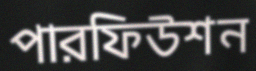
পারফিউশন